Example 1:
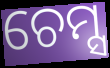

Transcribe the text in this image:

ଚେମ୍ସ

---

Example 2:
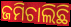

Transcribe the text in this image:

ଜମିଚାଲିଛି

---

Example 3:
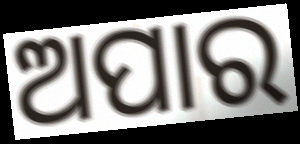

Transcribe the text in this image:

ଅପାର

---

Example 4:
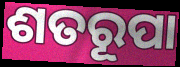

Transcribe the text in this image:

ଶତରୂପା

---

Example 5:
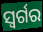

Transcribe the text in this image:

ସ୍ୱର୍ଗର